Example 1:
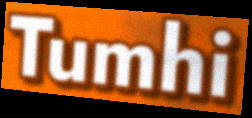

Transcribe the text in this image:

Tumhi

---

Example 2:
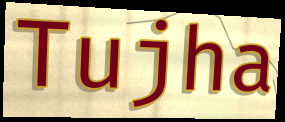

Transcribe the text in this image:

Tujha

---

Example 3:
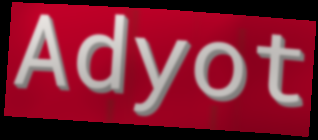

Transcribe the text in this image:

Adyot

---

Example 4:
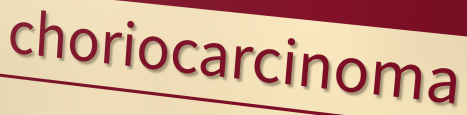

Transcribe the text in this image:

choriocarcinoma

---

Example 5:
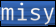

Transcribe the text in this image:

misy